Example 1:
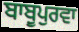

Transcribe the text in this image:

ਬਾਬੂਪੁਰਵਾ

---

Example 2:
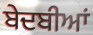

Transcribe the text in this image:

ਬੇਦਬੀਆਂ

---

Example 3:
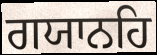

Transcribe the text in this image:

ਗਯਾਨਹਿ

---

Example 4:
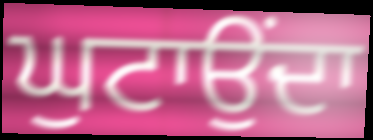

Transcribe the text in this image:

ਘੁਟਾਉਂਦਾ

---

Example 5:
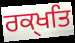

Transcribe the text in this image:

ਰਕ੍ਖਤਿ